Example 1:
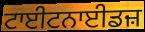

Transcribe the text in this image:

ਟਾਈਟਨਾਈਡਜ਼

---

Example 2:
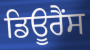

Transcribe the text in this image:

ਡਿਊਰੈਂਸ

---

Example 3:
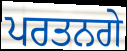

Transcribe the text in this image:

ਪਰਤਨਗੇ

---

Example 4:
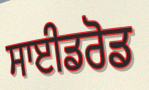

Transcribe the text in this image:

ਸਾਈਡਰੋਡ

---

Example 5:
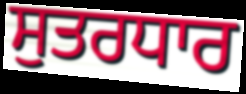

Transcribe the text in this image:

ਸੁਤਰਧਾਰ